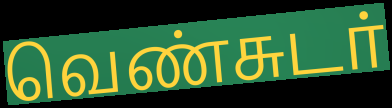
வெண்சுடர்